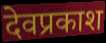
देवप्रकाश